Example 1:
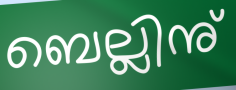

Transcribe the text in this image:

ബെല്ലിനു്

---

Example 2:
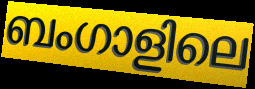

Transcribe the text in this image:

ബംഗാളിലെ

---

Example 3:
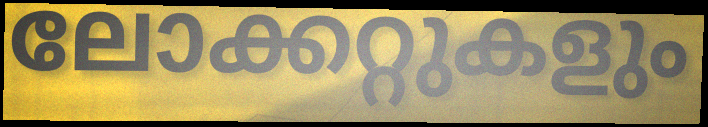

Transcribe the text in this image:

ലോക്കറ്റുകളും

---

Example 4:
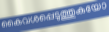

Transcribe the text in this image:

കൈവശപ്പെടുത്തുകയോ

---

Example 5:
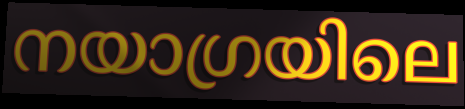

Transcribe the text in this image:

നയാഗ്രയിലെ